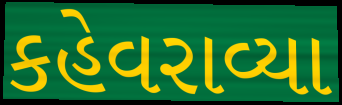
કહેવરાવ્યા